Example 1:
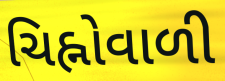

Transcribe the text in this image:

ચિહ્નોવાળી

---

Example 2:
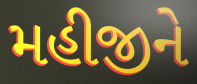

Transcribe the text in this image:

મહીજીને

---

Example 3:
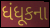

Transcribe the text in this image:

ધંધૂકના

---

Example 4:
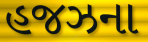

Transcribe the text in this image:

હજઝના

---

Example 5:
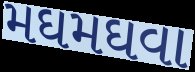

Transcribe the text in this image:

મઘમઘવા